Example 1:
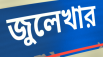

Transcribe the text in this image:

জুলেখার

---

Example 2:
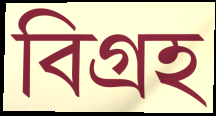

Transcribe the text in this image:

বিগ্রহ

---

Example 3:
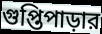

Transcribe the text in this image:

গুপ্তিপাড়ার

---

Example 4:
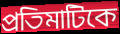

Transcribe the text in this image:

প্রতিমাটিকে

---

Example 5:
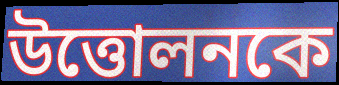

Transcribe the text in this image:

উত্তোলনকে